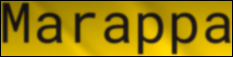
Marappa